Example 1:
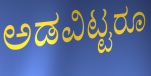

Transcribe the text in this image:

ಅಡವಿಟ್ಟರೂ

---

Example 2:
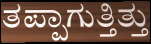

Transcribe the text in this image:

ತಪ್ಪಾಗುತ್ತಿತ್ತು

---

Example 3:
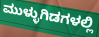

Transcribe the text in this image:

ಮುಳ್ಳುಗಿಡಗಳಲ್ಲಿ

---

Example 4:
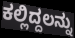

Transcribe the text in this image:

ಕಲ್ಲಿದ್ದಲನ್ನು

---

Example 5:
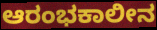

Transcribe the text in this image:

ಆರಂಭಕಾಲೀನ